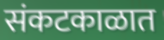
संकटकाळात